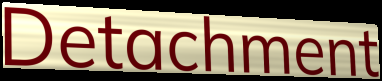
Detachment